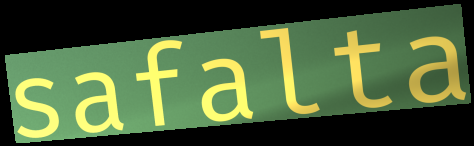
safalta